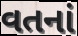
વતનાં